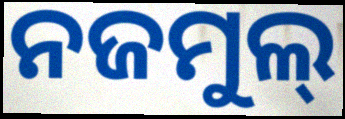
ନଜମୁଲ୍